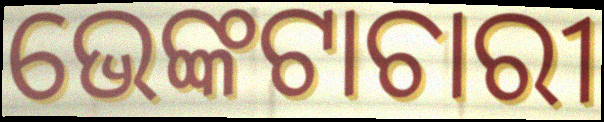
ଭେଙ୍କଟାଚାରୀ